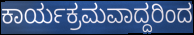
ಕಾರ್ಯಕ್ರಮವಾದ್ದರಿಂದ